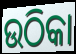
ଉଠିକା